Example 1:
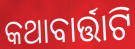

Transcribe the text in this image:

କଥାବାର୍ତ୍ତାଟି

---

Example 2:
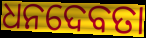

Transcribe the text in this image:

ଧନଦେବତା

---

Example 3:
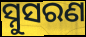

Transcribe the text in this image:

ସ୍ନୁସରଣ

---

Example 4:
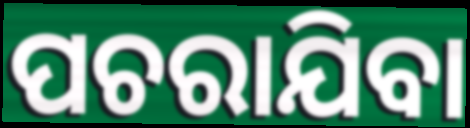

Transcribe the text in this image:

ପଚରାଯିବା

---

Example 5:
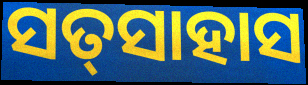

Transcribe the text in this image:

ସତ୍‌ସାହାସ